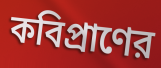
কবিপ্রাণের